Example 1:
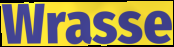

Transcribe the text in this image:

Wrasse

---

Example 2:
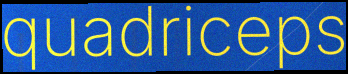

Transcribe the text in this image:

quadriceps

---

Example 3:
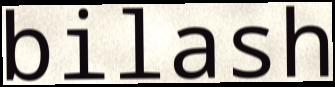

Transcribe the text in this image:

bilash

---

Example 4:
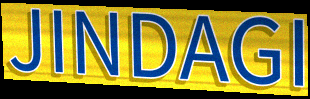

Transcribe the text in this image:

JINDAGI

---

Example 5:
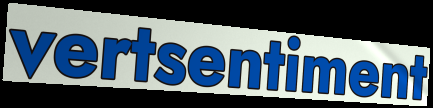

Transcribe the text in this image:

vertsentiment